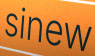
sinew